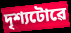
দৃশ্যটোৱে